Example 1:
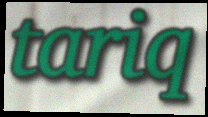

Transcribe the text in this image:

tariq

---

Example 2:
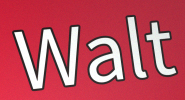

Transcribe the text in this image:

Walt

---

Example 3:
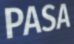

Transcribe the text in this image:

PASA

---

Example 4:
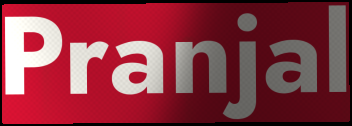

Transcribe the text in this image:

Pranjal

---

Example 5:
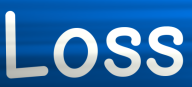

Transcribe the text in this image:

Loss